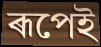
ৰূপেই